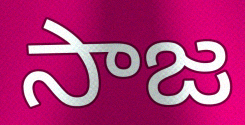
సాజ